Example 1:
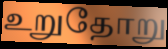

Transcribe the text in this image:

உறுதோறு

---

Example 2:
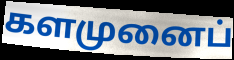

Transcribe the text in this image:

களமுனைப்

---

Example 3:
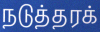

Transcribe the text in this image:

நடுத்தரக்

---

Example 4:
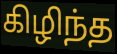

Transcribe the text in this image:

கிழிந்த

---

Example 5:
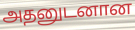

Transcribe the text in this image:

அதனுடனான